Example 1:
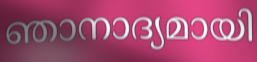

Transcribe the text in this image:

ഞാനാദ്യമായി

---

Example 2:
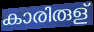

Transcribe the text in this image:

കാരിരുള്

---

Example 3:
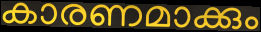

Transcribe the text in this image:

കാരണമാക്കും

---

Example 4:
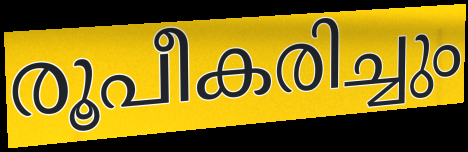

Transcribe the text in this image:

രൂപീകരിച്ചും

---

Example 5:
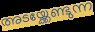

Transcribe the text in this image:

അടയ്ക്കേണ്ടുന്ന